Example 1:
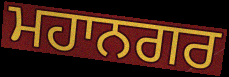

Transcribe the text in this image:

ਮਹਾਨਗਰ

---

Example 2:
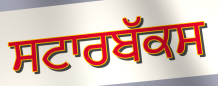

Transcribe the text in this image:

ਸਟਾਰਬੱਕਸ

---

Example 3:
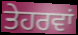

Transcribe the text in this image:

ਤੇਹਰਵਾਂ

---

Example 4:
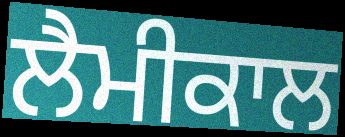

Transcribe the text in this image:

ਲੈਮੀਕਾਲ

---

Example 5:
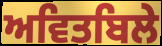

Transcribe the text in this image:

ਅਵਿਤਬਿਲੇ